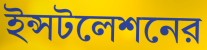
ইন্সটলেশনের